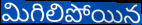
మిగిలిపోయిన